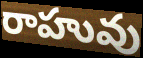
రాహువు